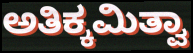
ಅತಿಕ್ಕಮಿತ್ವಾ